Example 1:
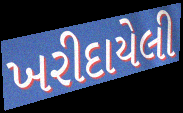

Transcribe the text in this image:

ખરીદાયેલી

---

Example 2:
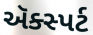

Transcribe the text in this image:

ઍક્સ્પર્ટ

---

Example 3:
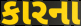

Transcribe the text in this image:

કારના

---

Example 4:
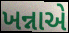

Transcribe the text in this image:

ખન્નાએ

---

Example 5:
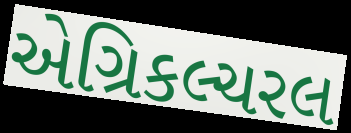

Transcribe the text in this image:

એગ્રિકલ્ચરલ